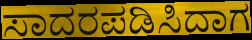
ಸಾದರಪಡಿಸಿದಾಗ